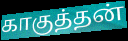
காகுத்தன்